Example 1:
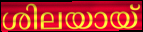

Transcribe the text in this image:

ശിലയായ്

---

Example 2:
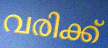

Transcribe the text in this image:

വരിക്ക്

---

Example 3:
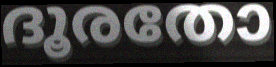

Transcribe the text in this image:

ദൂരതോ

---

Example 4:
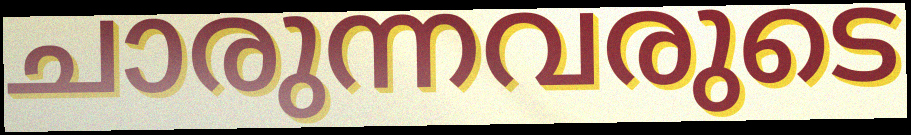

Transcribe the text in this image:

ചാരുന്നവരുടെ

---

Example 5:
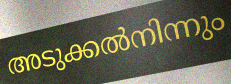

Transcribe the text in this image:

അടുക്കൽനിന്നും